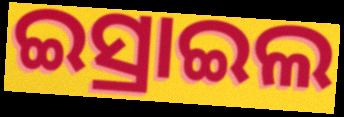
ଇସ୍ରାଇଲ